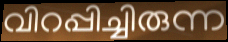
വിറപ്പിച്ചിരുന്ന